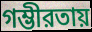
গম্ভীরতায়